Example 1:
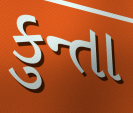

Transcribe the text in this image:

કુન્તા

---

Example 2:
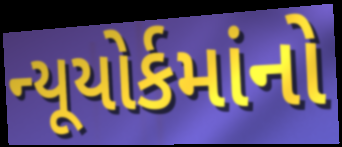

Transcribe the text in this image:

ન્યૂયોર્કમાંનો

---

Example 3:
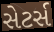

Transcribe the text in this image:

સેટર્સ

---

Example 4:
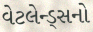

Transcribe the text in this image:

વેટલેન્ડ્સનો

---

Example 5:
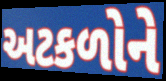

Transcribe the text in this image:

અટકળોને